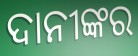
ଦାନୀଙ୍କର